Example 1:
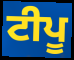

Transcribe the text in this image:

ਟੀਪੂ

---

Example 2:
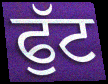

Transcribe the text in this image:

ਫੁੱਟ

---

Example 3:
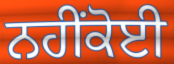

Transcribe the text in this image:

ਨਹੀਂਕੋਈ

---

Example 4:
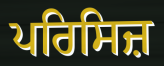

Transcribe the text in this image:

ਪਰਿਸਿਜ਼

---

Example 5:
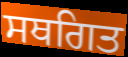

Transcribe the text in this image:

ਸਥਗਿਤ